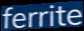
ferrite